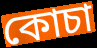
কোচা